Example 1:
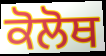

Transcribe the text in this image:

ਕੋਲੋਥ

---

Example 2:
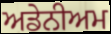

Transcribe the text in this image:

ਅਡੇਨੀਅਮ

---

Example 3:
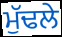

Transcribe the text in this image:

ਮੁੱਢਲੇ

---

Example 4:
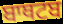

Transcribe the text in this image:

ਬਾਥਟਬ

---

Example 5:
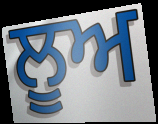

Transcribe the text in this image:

ਲੂਅ